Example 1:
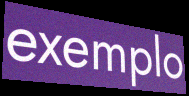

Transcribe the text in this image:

exemplo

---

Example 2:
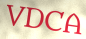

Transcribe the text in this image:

VDCA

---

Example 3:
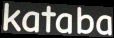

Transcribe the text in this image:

kataba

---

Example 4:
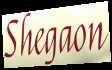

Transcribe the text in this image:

Shegaon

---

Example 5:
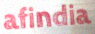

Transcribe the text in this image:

afindia